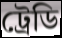
ট্রেডি